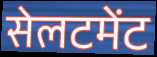
सेलटमेंट